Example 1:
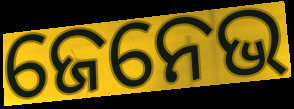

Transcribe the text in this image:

ଜେନେଭ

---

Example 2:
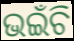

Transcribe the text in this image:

ଭଇଁଚି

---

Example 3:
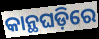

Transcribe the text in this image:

କାନ୍ଥଘଡ଼ିରେ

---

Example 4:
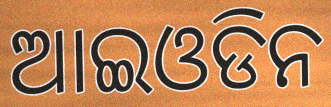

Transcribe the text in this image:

ଆଇଓଡିନ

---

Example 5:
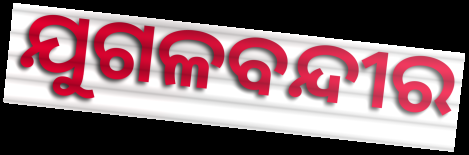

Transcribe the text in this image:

ଯୁଗଳବନ୍ଦୀର